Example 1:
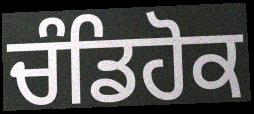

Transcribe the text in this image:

ਚੰਡਿਹੋਕ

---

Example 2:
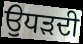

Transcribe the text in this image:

ਉਧੜਦੀ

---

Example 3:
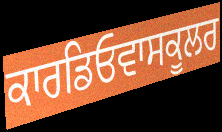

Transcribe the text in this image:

ਕਾਰਡਿਓਵਾਸਕੂਲਰ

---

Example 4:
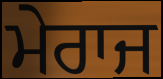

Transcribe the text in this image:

ਮੇਰਾਜ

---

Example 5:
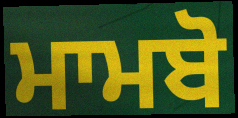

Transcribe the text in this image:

ਮਾਮਬੋ